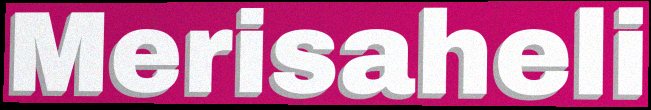
Merisaheli